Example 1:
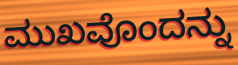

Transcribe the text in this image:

ಮುಖವೊಂದನ್ನು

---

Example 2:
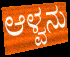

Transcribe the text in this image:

ಆಳ್ವನು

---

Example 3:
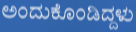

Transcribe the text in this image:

ಅಂದುಕೊಂಡಿದ್ದಳು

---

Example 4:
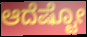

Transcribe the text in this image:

ಆದೆಷ್ಟೋ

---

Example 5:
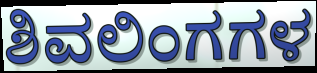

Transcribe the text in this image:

ಶಿವಲಿಂಗಗಳ